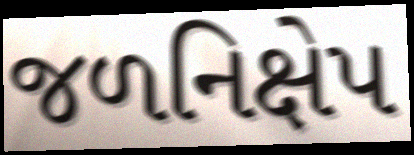
જળનિક્ષેપ